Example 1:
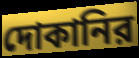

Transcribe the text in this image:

দোকানির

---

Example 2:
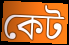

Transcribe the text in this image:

কেট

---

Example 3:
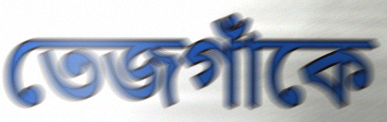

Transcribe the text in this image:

তেজগাঁকে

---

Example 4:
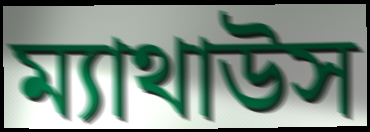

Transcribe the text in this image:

ম্যাথাউস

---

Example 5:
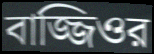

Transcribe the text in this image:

বাজ্জিওর